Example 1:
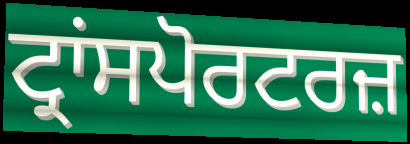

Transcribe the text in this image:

ਟ੍ਰਾਂਸਪੋਰਟਰਜ਼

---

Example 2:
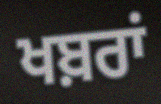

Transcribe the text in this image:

ਖਬ਼ਰਾਂ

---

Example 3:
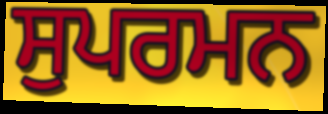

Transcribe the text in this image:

ਸੁਪਰਮਨ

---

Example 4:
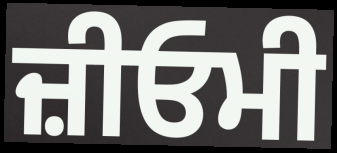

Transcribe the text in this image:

ਜ਼ੀਓਮੀ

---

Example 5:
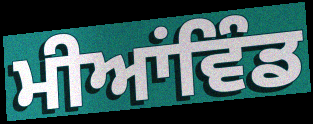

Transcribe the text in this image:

ਮੀਆਂਵਿੰਡ